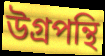
উগ্রপন্থি